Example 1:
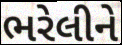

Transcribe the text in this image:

ભરેલીને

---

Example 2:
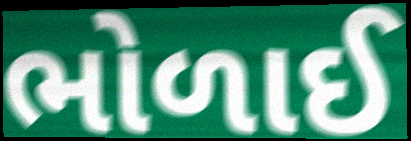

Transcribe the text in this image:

ભોળાઈ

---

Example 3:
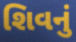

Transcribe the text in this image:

શિવનું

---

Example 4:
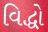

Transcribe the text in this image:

વિદ્ધો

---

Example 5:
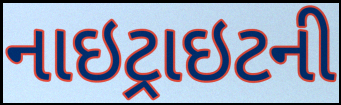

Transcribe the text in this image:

નાઇટ્રાઇટની